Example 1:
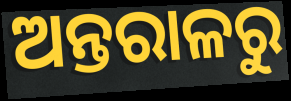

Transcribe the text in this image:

ଅନ୍ତରାଳରୁ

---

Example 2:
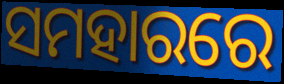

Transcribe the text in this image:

ସମହାରରେ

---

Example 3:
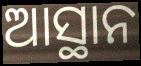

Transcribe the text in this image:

ଆସ୍ଥାନ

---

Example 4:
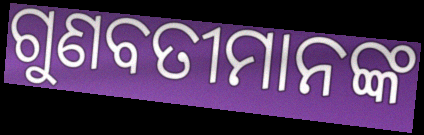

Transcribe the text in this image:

ଗୁଣବତୀମାନଙ୍କ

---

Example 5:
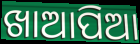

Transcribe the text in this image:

ଖାଆପିଆ